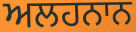
ਅਲਹਨਾਨ